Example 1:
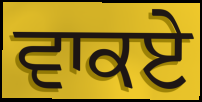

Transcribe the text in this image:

ਵਾਕਏ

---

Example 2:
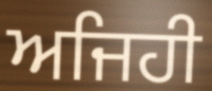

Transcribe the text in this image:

ਅਜਿਹੀ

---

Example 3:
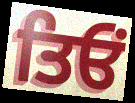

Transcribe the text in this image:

ਤਿਓਂ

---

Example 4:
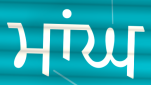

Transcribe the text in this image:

ਮਾਂਘ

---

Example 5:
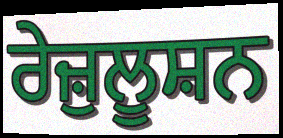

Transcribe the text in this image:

ਰੇਜ਼ੁਲੂਸ਼ਨ